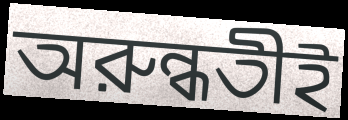
অরুন্ধতীই